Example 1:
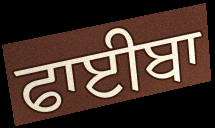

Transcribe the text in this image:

ਫਾਈਬਾ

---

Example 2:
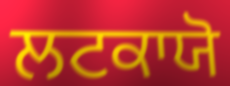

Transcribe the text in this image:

ਲਟਕਾਯੋ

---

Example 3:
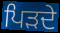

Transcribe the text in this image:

ਪਿੜਦੇ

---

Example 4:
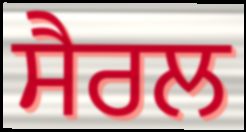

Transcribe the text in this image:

ਸੈਰਲ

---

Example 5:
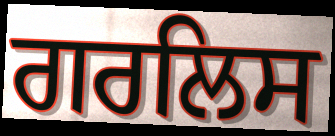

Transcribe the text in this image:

ਗਰਲਿਸ